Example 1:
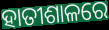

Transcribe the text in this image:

ହାତୀଶାଳରେ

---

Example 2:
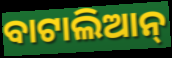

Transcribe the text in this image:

ବାଟାଲିଆନ୍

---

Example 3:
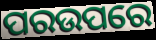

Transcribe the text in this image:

ପରଉପରେ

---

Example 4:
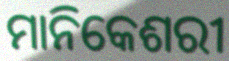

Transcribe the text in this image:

ମାନିକେଶରୀ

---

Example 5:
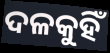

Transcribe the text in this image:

ଦଳକୁହିଁ